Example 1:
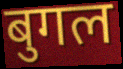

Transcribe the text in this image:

बुगल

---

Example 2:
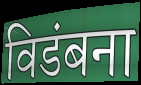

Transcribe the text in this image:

विडंबना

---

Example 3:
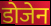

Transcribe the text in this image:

डोजेन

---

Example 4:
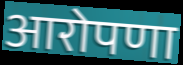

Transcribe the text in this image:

आरोपणा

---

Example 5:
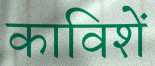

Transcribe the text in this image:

काविशें